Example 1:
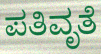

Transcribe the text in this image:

ಪತಿವೃತೆ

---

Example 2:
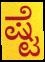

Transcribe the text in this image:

ಷ್ಟೆ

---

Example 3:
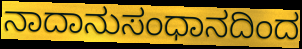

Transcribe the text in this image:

ನಾದಾನುಸಂಧಾನದಿಂದ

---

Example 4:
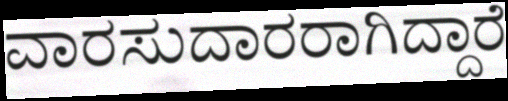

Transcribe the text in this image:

ವಾರಸುದಾರರಾಗಿದ್ದಾರೆ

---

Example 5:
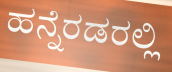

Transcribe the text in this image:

ಹನ್ನೆರಡರಲ್ಲಿ